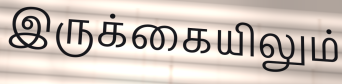
இருக்கையிலும்